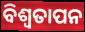
ବିଶ୍ବତାପନ